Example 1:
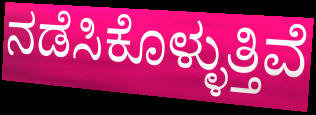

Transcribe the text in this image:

ನಡೆಸಿಕೊಳ್ಳುತ್ತಿವೆ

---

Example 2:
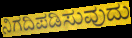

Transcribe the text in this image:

ನಿಗದಿಪಡಿಸುವುದು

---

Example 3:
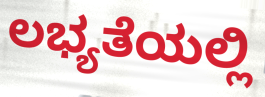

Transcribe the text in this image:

ಲಭ್ಯತೆಯಲ್ಲಿ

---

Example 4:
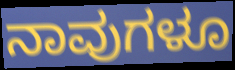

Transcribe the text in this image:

ನಾವುಗಳೂ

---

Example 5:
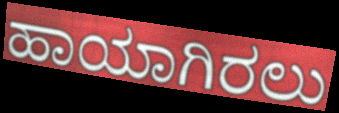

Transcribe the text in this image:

ಹಾಯಾಗಿರಲು